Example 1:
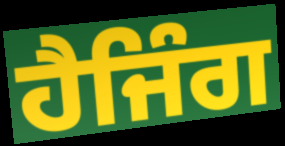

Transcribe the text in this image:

ਹੈਜਿੰਗ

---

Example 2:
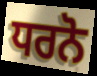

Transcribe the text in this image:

ਧਰਨੋ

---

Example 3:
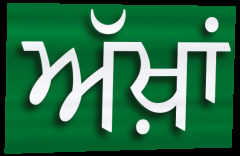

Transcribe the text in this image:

ਅੱਖ਼ਾਂ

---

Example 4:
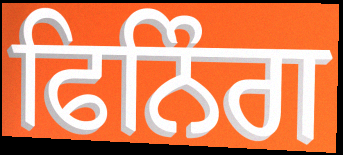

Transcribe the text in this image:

ਫਿਨਿੰਗ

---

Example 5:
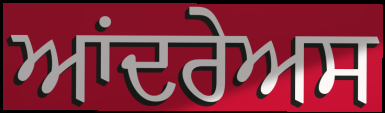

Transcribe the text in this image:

ਆਂਦਰੇਅਸ